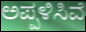
ಅಪ್ಪಳಿಸಿವೆ